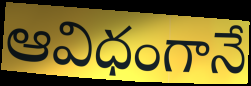
ఆవిధంగానే